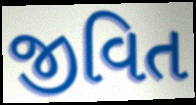
જીવિત